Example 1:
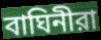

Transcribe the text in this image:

বাঘিনীরা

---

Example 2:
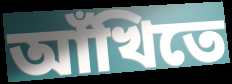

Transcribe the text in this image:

আঁখিতে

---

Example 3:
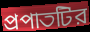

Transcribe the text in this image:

প্রপাতটির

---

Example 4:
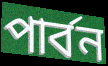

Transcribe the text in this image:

পার্বন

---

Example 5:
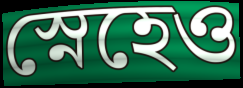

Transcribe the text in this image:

স্নেহেও